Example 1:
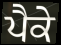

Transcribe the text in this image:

ਪੈਕੇ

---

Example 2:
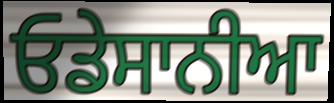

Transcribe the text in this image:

ਓਡੇਸਾਨੀਆ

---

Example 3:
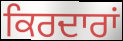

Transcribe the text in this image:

ਕਿਰਦਾਰਾਂ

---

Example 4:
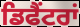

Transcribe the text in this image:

ਡਿਫੈਂਟਰਾਂ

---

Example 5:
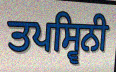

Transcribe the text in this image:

ਤਪਸ੍ਵਿਨੀ